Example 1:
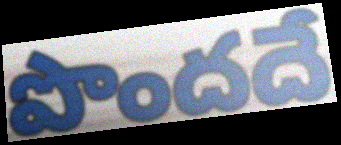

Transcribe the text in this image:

పొందదే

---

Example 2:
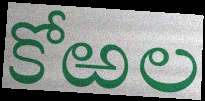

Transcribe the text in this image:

కోఱల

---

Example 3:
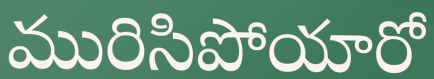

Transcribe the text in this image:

మురిసిపోయారో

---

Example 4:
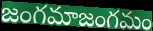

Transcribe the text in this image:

జంగమాజంగమం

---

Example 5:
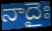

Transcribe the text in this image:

నాదైః